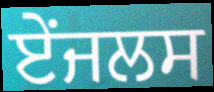
ਏਂਜਲਸ